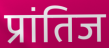
प्रांतिज